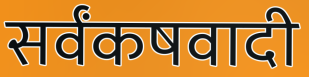
सर्वंकषवादी